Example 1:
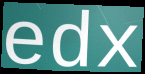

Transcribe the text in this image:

edx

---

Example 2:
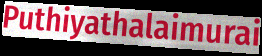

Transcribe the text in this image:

Puthiyathalaimurai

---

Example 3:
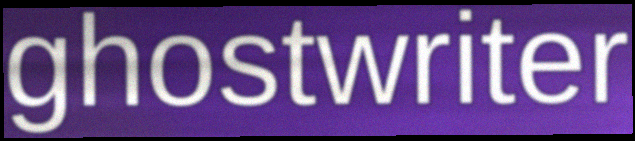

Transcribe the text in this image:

ghostwriter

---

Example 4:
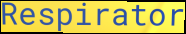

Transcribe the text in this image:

Respirator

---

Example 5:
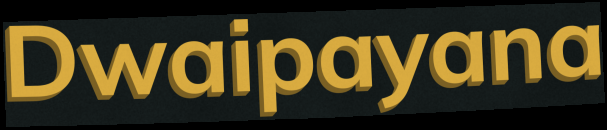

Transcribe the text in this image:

Dwaipayana